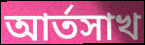
আর্তসাখ